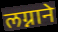
लग्नाने